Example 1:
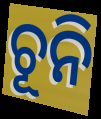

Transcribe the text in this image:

ଚୂନି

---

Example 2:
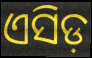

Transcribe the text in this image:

ଏସିଡ଼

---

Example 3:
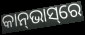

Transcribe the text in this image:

କାନ୍‌ଭାସ୍‌ରେ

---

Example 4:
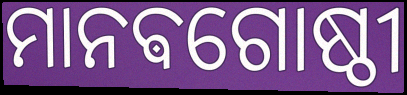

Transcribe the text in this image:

ମାନଵଗୋଷ୍ଠୀ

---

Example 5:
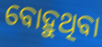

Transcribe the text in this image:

ବୋହୁଥିବା